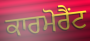
ਕਾਰਮੋਰੈਂਟ